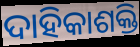
ଦାହିକାଶକ୍ତି